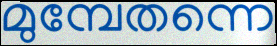
മുമ്പേതന്നെ